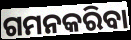
ଗମନକରିବା